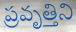
ప్రవృత్తిని